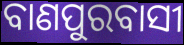
ବାଣପୁରବାସୀ